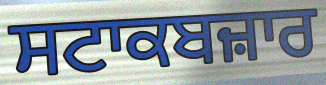
ਸਟਾਕਬਜ਼ਾਰ